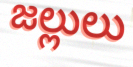
జల్లులు